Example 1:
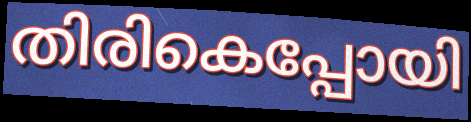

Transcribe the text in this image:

തിരികെപ്പോയി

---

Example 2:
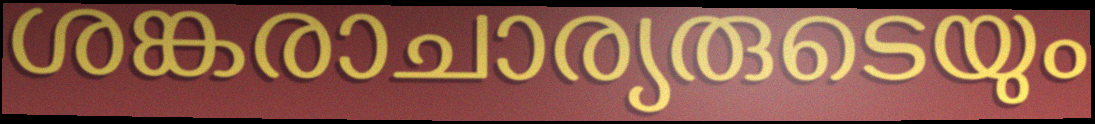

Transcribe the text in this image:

ശങ്കരാചാര്യരുടെയും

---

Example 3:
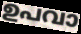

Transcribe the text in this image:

ഉപവാ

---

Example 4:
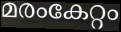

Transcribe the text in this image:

മരംകേറ്റം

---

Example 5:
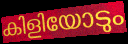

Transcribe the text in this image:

കിളിയോടും